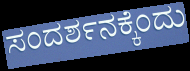
ಸಂದರ್ಶನಕ್ಕೆಂದು